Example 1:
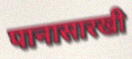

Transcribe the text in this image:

पानासारखी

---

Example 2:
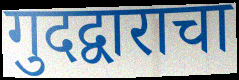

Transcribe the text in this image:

गुदद्वाराचा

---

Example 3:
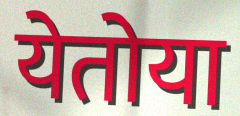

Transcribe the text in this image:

येतोया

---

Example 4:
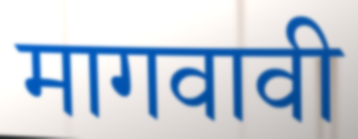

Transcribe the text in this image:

मागवावी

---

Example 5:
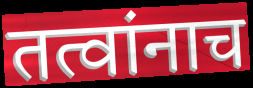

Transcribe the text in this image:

तत्वांनाच